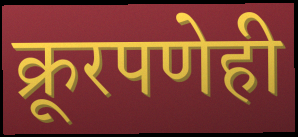
क्रूरपणेही